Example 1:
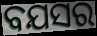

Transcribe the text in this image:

ବଯସର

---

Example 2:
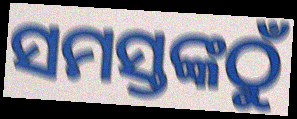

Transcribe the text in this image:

ସମସ୍ତଙ୍କଠୁଁ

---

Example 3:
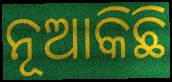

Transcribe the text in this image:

ନୂଆକିଛି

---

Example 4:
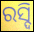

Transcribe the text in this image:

ରସ୍ଦି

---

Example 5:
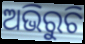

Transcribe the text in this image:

ଅଭିରୁଚି